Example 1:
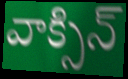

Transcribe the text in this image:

వాక్సిన్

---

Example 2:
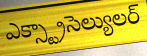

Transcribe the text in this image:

ఎక్స్ట్రాసెల్యులర్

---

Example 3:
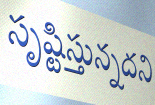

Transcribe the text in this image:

సృష్టిస్తున్నదని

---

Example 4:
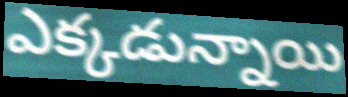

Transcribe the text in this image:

ఎక్కడున్నాయి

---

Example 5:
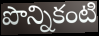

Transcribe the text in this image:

పొన్నికంటి